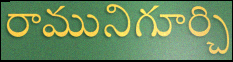
రామునిగూర్చి